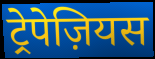
ट्रेपेज़ियस